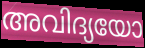
അവിദ്യയോ